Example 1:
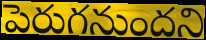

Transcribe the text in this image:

పెరుగనుందని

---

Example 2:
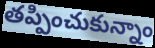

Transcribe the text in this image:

తప్పించుకున్నాం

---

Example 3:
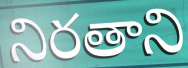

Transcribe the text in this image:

నిరతాని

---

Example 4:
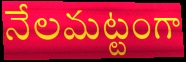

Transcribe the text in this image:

నేలమట్టంగా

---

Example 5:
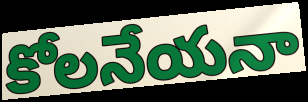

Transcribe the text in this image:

కోలనేయనా